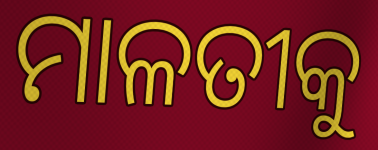
ମାଳତୀକୁ